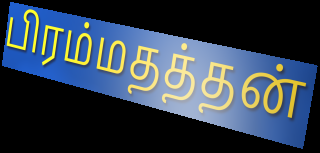
பிரம்மதத்தன்